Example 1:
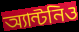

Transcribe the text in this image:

অ্যান্টনিও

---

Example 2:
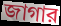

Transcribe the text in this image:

জাগার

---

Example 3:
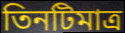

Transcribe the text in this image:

তিনটিমাত্র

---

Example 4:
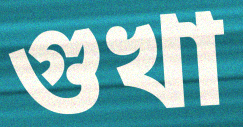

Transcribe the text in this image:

গুখা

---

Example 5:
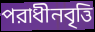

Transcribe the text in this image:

পরাধীনবৃত্তি